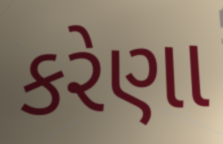
કરેણા